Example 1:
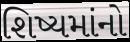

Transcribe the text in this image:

શિષ્યમાંનો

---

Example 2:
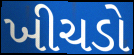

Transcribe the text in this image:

ખીચડો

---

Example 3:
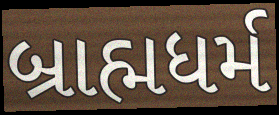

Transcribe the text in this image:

બ્રાહ્મધર્મ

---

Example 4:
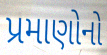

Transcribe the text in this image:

પ્રમાણોનો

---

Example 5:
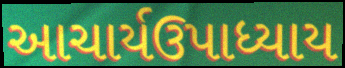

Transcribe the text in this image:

આચાર્યઉપાધ્યાય